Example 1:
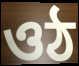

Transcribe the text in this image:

ওঠ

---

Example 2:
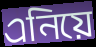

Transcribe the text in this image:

এনিয়ে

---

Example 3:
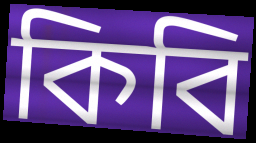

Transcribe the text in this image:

কিবি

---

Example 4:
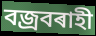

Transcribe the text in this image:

বজ্ৰবৰাহী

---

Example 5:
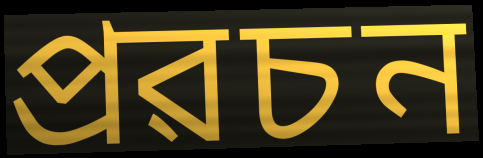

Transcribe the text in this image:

প্ৰৱচন